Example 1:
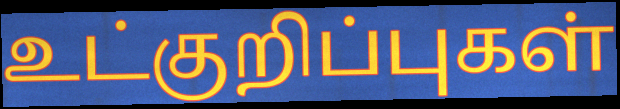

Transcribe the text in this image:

உட்குறிப்புகள்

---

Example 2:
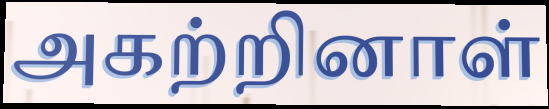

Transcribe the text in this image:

அகற்றினாள்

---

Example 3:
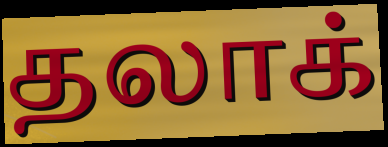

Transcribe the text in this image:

தலாக்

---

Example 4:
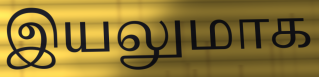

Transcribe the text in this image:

இயலுமாக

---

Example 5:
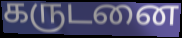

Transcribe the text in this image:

கருடனை